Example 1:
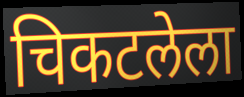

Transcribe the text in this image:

चिकटलेला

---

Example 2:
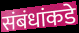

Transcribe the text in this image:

संबंधांकडे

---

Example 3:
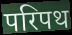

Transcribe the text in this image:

परिपथ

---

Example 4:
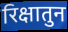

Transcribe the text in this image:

रिक्षातुन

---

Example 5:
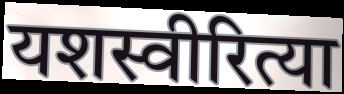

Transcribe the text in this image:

यशस्वीरित्या